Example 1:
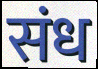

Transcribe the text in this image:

संध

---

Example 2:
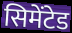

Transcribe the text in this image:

सिमेंटेड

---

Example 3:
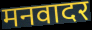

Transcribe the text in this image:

मनवादर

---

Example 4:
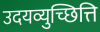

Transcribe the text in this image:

उदयव्युच्छित्ति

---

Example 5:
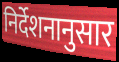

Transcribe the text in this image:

निर्देशनानुसार